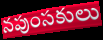
నపుంసకులు